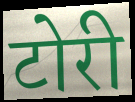
टोरी